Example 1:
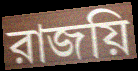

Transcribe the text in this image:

রাজয়ি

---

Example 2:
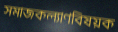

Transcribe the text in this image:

সমাজকল্যাণবিষয়ক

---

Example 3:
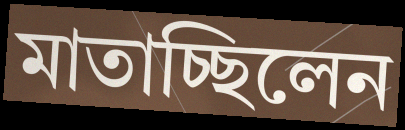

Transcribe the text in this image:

মাতাচ্ছিলেন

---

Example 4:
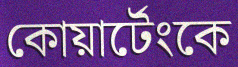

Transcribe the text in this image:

কোয়ার্টেংকে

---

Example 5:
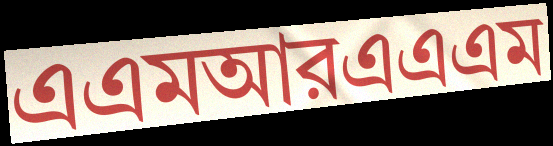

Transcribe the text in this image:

এএমআরএএএম